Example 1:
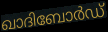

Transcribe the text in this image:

ഖാദിബോർഡ്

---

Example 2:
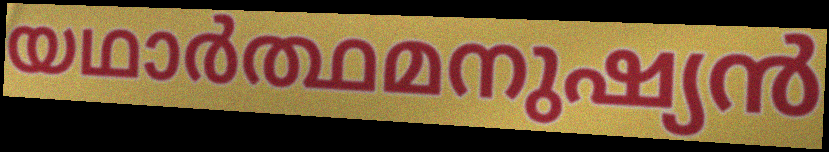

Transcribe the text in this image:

യഥാർത്ഥമനുഷ്യൻ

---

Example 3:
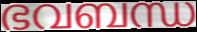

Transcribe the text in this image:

ഭവബന്ധ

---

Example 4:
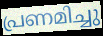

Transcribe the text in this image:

പ്രണമിച്ചു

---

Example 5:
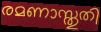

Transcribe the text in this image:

രമണാസ്തുതി